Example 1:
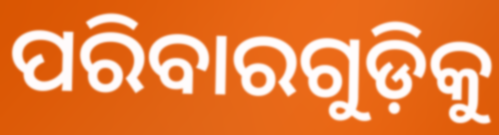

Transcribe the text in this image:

ପରିବାରଗୁଡ଼ିକୁ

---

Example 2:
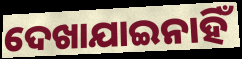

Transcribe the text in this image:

ଦେଖାଯାଇନାହିଁ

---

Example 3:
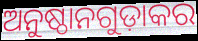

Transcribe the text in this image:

ଅନୁଷ୍ଠାନଗୁଡ଼ାକର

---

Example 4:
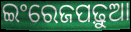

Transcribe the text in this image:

ଇଂରେଜପଢ଼ୁଆ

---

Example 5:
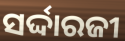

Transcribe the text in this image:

ସର୍ଦ୍ଦାରଜୀ